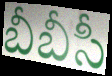
బీబీసీ